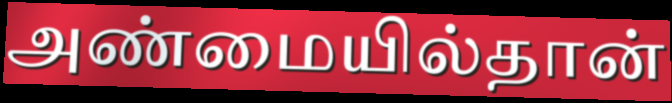
அண்மையில்தான்